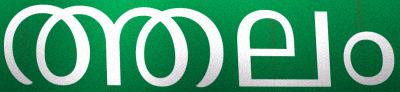
ത്തലം